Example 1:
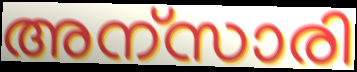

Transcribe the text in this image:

അന്സാരി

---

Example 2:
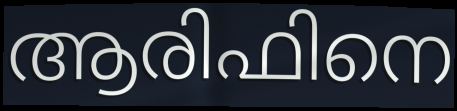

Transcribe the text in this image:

ആരിഫിനെ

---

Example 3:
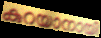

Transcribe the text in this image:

കുറയാനായി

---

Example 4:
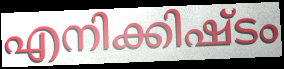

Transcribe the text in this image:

എനിക്കിഷ്ടം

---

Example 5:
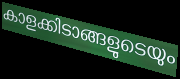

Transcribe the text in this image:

കാളക്കിടാങ്ങളുടെയും